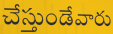
చేస్తుండేవారు